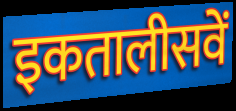
इकतालीसवें